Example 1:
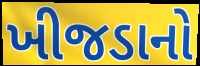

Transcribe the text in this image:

ખીજડાનો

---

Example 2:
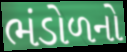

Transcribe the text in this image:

ભંડોળનો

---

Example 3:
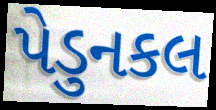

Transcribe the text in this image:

પેડુનકલ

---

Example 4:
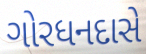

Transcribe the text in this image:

ગોરધનદાસે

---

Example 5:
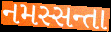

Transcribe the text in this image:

નમસ્સન્તા